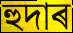
হুদাৰ